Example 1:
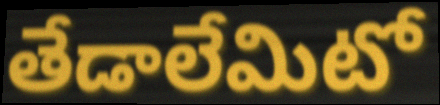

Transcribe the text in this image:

తేడాలేమిటో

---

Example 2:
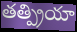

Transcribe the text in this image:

తత్ప్రియా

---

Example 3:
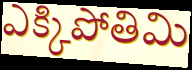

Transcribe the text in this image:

ఎక్కిపోతిమి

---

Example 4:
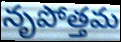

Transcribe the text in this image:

నృపోత్తమ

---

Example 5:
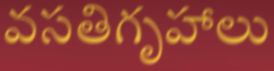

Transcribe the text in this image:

వసతిగృహాలు